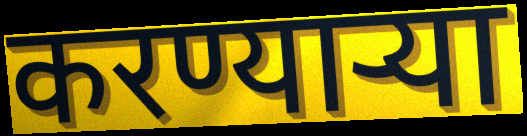
करण्यार्‍या